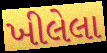
ખીલેલા